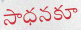
సాధనకూ